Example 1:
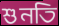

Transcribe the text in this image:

শুনতি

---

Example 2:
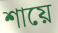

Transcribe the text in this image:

শায়ে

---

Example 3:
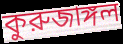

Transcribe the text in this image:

কুরুজাঙ্গল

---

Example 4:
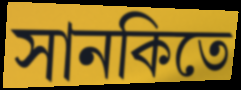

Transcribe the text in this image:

সানকিতে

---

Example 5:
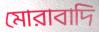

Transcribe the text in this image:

মোরাবাদি